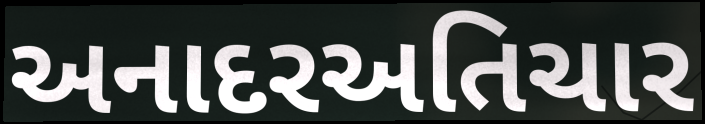
અનાદરઅતિચાર